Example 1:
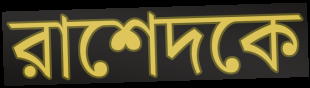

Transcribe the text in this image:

রাশেদকে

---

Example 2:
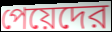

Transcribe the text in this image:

পেয়েদের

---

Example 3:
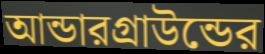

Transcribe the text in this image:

আন্ডারগ্রাউন্ডের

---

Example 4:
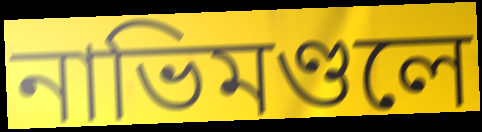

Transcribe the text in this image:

নাভিমণ্ডলে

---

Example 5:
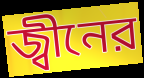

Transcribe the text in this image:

জ্বীনের